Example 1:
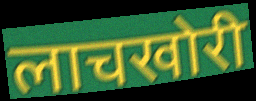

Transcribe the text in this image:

लाचखोरी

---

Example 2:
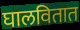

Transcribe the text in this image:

घालवितात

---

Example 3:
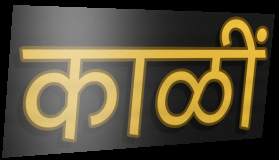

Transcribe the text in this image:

काळीं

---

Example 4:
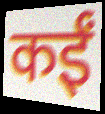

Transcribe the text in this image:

कईं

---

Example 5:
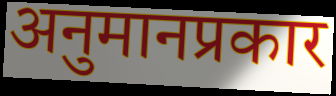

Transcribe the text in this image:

अनुमानप्रकार